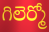
గిలెర్మో